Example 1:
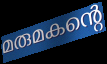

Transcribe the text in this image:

മരുമകന്റെ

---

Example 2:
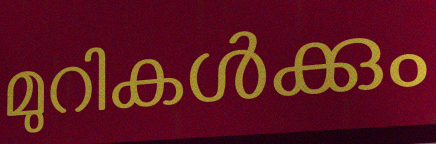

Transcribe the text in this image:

മുറികൾക്കും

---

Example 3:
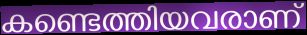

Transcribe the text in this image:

കണ്ടെത്തിയവരാണ്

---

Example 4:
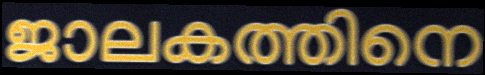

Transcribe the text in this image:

ജാലകത്തിനെ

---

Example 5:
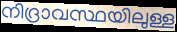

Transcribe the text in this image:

നിദ്രാവസ്ഥയിലുള്ള